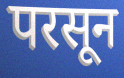
परसून